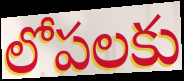
లోపలకు